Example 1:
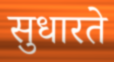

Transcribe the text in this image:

सुधारते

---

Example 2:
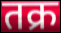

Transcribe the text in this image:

तक्र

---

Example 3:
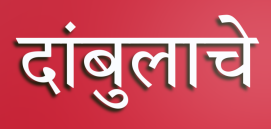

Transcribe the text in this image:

दांबुलाचे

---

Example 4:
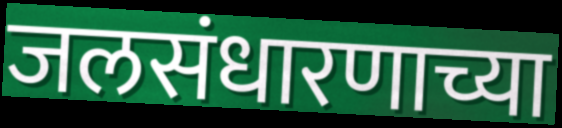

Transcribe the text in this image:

जलसंधारणाच्या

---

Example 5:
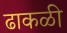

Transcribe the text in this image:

ढाकळी